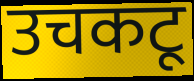
उचकटू